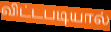
விட்டபடியால்